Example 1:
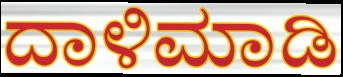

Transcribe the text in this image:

ದಾಳಿಮಾಡಿ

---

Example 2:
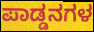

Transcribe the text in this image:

ಪಾಡ್ಡನಗಳ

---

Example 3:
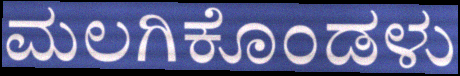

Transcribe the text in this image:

ಮಲಗಿಕೊಂಡಳು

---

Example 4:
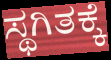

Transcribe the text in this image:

ಸ್ಥಗಿತಕ್ಕೆ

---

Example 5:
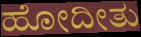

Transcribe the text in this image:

ಹೋದೀತು